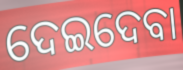
ଦେଇଦେବା